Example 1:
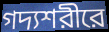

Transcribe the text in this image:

গদ্যশরীরে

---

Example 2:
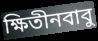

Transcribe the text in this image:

ক্ষিতীনবাবু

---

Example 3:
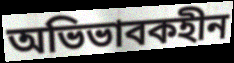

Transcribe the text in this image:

অভিভাবকহীন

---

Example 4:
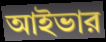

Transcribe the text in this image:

আইভার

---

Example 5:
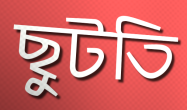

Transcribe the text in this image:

ছুটতি